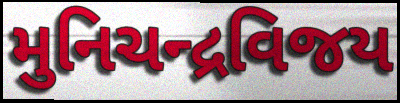
મુનિચન્દ્રવિજય